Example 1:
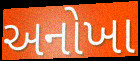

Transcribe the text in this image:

અનોખા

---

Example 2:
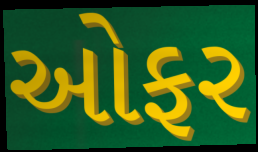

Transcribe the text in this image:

ઓફર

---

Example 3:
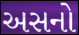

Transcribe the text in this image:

અસનો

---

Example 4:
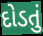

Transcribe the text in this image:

દોડતું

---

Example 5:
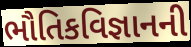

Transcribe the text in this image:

ભૌતિકવિજ્ઞાનની